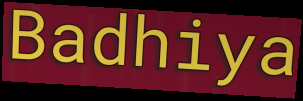
Badhiya